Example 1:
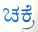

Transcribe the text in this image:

ಚಕ್ರೆ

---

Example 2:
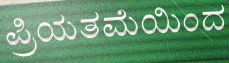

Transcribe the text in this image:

ಪ್ರಿಯತಮೆಯಿಂದ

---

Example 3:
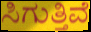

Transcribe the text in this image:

ಸಿಗುತ್ತಿವೆ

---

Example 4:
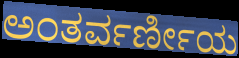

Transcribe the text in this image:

ಅಂತರ್ವರ್ಣೀಯ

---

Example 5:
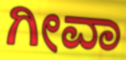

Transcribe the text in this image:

ಗೀವಾ